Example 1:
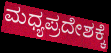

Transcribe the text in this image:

ಮಧ್ಯಪ್ರದೇಶಕ್ಕೆ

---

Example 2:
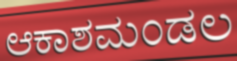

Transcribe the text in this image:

ಆಕಾಶಮಂಡಲ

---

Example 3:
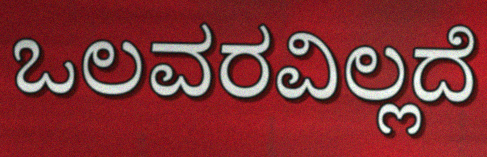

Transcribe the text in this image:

ಒಲವರವಿಲ್ಲದೆ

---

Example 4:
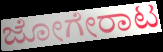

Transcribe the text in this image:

ಜೋಗೇರಾಟ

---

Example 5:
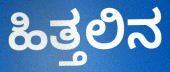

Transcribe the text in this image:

ಹಿತ್ತಲಿನ